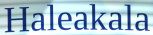
Haleakala